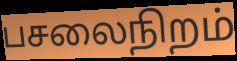
பசலைநிறம்